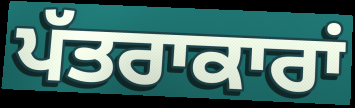
ਪੱਤਰਾਕਾਰਾਂ